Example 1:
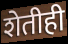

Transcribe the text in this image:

शेतीही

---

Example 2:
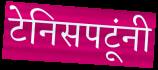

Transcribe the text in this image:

टेनिसपटूंनी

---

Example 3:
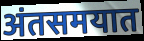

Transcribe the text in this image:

अंतसमयात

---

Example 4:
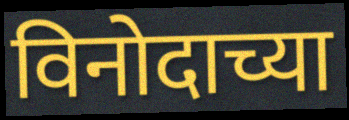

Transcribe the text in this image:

विनोदाच्या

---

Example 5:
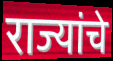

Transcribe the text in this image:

राज्यांचे